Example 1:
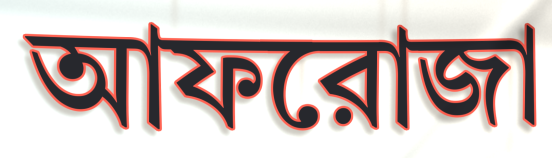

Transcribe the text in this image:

আফরোজা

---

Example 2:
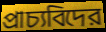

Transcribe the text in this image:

প্রাচ্যবিদের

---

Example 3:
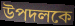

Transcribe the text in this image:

উপদলকে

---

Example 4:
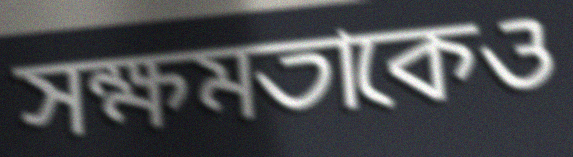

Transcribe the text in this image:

সক্ষমতাকেও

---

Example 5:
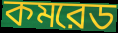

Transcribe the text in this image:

কমরেড